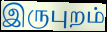
இருபுறம்